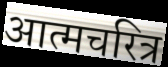
आत्मचरित्र